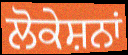
ਲੋਕੇਸ਼ਨਾਂ